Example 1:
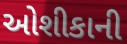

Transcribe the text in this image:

ઓશીકાની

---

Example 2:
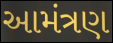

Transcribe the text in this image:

આમંત્રણ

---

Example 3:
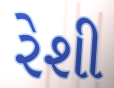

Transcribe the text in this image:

રેશી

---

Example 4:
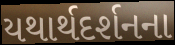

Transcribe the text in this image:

યથાર્થદર્શનના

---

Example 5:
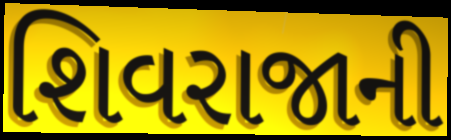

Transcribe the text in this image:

શિવરાજાની